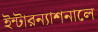
ইন্টারন্যাশনালে